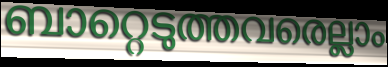
ബാറ്റെടുത്തവരെല്ലാം